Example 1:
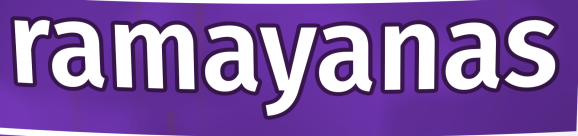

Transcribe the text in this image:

ramayanas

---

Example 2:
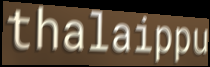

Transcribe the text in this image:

thalaippu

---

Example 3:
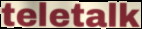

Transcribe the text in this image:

teletalk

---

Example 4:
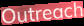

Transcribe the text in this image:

Outreach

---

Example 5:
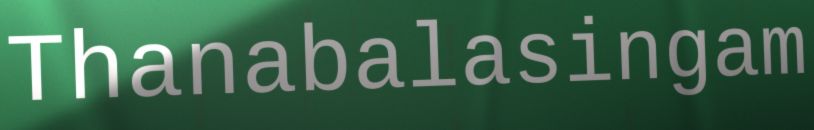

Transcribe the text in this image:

Thanabalasingam